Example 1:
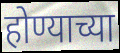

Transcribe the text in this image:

होण्याच्या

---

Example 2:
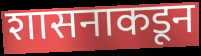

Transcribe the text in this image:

शासनाकडून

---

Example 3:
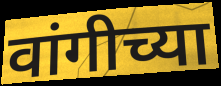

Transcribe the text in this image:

वांगीच्या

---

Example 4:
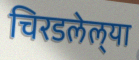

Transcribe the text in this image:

चिरडलेल्या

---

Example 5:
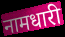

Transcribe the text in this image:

नामधारी